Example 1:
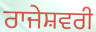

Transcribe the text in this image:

ਰਾਜੇਸ਼ਵਰੀ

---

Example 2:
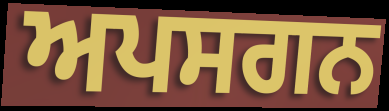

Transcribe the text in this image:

ਅਪਸਗਨ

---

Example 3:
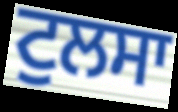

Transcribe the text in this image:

ਟੁਲਸਾ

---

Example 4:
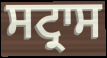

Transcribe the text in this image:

ਸਟ੍ਰਾਸ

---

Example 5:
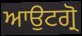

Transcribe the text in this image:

ਆਉਟਗ੍ਰੋ